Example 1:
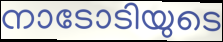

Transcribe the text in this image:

നാടോടിയുടെ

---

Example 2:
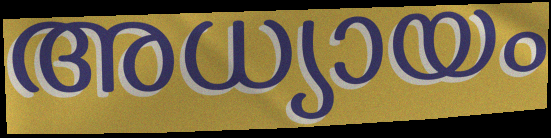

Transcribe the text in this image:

അധ്യായം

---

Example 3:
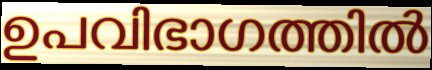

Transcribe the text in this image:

ഉപവിഭാഗത്തിൽ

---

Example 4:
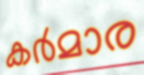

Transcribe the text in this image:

കർമാര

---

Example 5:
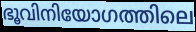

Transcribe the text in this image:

ഭൂവിനിയോഗത്തിലെ